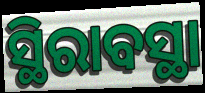
ସ୍ଥିରାବସ୍ଥା